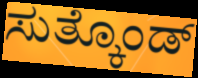
ಸುತ್ಕೊಂಡ್